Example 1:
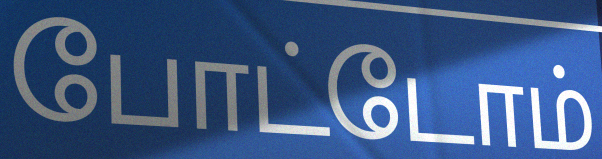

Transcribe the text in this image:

போட்டோம்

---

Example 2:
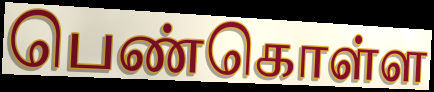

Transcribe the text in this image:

பெண்கொள்ள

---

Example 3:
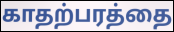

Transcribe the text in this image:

காதற்பரத்தை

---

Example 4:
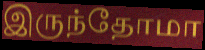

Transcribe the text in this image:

இருந்தோமா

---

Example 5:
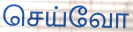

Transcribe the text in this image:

செய்வோ